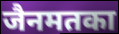
जैनमतका